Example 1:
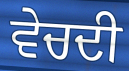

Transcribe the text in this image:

ਵੇਚਦੀ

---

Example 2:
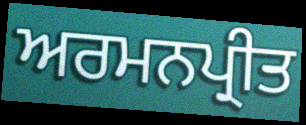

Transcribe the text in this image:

ਅਰਮਨਪ੍ਰੀਤ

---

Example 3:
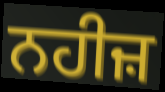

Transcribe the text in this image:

ਨਹੀਜ਼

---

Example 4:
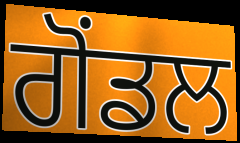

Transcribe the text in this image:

ਗੋਂਡਲ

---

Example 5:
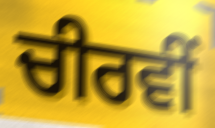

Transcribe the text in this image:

ਚੀਰਵੀਂ